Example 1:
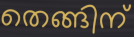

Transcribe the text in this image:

തെങ്ങിന്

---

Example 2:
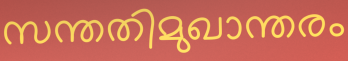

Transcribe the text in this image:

സന്തതിമുഖാന്തരം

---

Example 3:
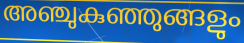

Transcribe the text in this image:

അഞ്ചുകുഞ്ഞുങ്ങളും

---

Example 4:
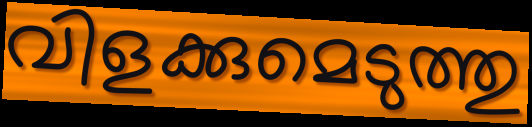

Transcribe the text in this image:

വിളക്കുമെടുത്തു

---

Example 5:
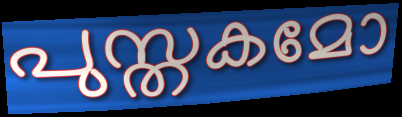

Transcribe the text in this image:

പുസ്തകമോ